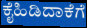
ಕೈಹಿಡಿದಾಕೆಗೆ